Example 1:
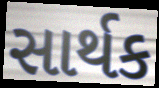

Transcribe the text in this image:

સાર્થક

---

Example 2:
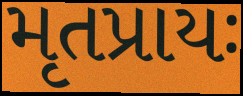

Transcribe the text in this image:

મૃતપ્રાયઃ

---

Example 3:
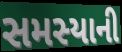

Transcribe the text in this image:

સમસ્યાની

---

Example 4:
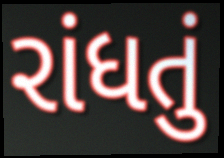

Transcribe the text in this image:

રાંધતું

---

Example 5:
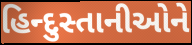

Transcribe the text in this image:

હિન્દુસ્તાનીઓને